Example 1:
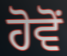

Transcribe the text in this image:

ਹੋਵੋਂ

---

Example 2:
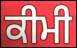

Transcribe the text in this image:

ਕੀਮੀ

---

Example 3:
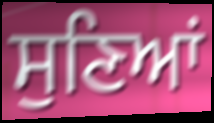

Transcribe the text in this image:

ਸੁਣਿਆਂ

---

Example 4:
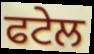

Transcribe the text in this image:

ਫਟੇਲ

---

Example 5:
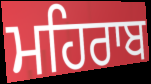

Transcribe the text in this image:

ਮਹਿਰਾਬ